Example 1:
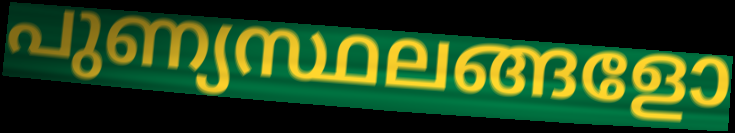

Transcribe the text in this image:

പുണ്യസ്ഥലങ്ങളോ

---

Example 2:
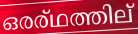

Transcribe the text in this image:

ഒരര്ഥത്തില്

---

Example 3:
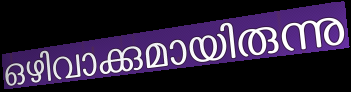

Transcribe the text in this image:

ഒഴിവാക്കുമായിരുന്നു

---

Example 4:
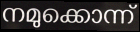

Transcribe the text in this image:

നമുക്കൊന്ന്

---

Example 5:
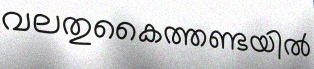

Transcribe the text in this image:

വലതുകൈത്തണ്ടയിൽ